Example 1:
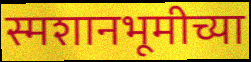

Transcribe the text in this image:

स्मशानभूमीच्या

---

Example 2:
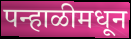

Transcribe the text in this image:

पन्हाळीमधून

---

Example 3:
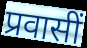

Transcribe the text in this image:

प्रवासीं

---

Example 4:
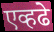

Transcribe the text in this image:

एव्हढे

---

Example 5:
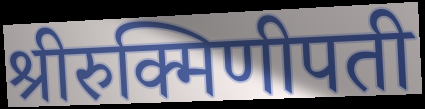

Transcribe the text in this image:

श्रीरुक्मिणीपती